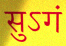
सुऽगं